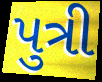
પુત્રી